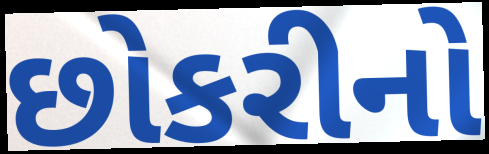
છોકરીનો